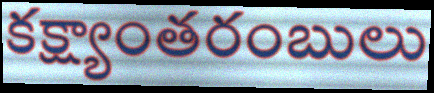
కక్ష్యాంతరంబులు